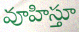
వూహిస్తూ